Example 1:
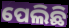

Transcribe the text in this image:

ପେଲିଛି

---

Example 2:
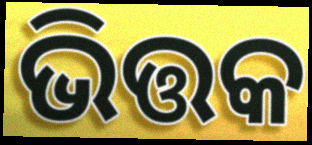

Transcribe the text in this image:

ଭିତ୍ତକ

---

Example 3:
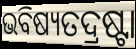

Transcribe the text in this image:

ଭବିଷ୍ୟତଦ୍ରଷ୍ଟା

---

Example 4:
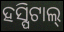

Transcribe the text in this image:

ହସ୍ପିଟାଲ୍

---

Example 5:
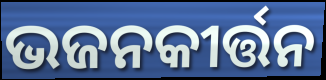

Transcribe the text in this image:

ଭଜନକୀର୍ତ୍ତନ